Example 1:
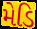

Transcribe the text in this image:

મેડિ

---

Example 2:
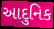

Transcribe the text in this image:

આદુનિક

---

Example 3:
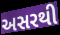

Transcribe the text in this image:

અસરથી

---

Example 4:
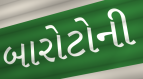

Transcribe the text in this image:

બારોટોની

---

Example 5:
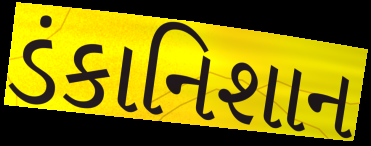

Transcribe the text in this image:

ડંકાનિશાન